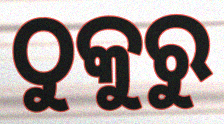
ଠୁକୁରୁ